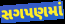
સગપણમાં